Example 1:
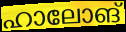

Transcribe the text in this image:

ഹാലോങ്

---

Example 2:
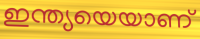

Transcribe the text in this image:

ഇന്ത്യയെയാണ്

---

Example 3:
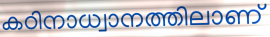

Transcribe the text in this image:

കഠിനാധ്വാനത്തിലാണ്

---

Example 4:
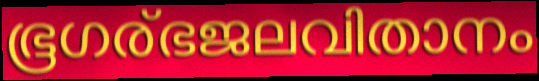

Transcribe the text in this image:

ഭൂഗര്ഭജലവിതാനം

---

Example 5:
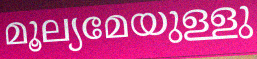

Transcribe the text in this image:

മൂല്യമേയുള്ളു